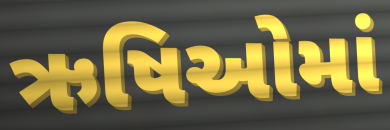
ઋષિઓમાં